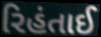
રિહંતાઈ